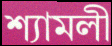
শ্যামলী